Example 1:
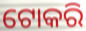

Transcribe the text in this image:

ଟୋକରି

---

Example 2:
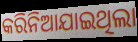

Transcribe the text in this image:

କରିନିଆଯାଇଥିଲା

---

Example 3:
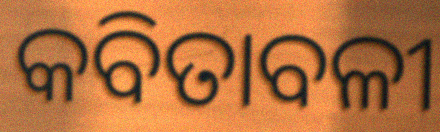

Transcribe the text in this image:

କବିତାବଳୀ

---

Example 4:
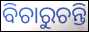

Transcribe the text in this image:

ବିଚାରୁଚନ୍ତି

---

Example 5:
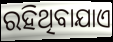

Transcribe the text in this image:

ରହିଥିବାଯାଏ